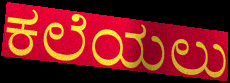
ಕಲೆಯಲು